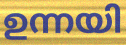
ഉന്നയി